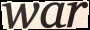
war